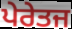
ਪੇਰੇਤਜ